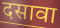
दसावा